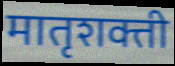
मातृशक्ती